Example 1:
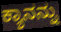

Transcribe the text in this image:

ಕ್ಯಾನನ್ನು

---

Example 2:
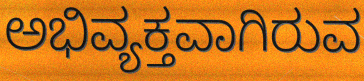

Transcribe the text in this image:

ಅಭಿವ್ಯಕ್ತವಾಗಿರುವ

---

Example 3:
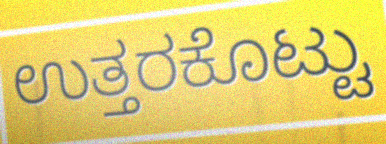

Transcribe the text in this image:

ಉತ್ತರಕೊಟ್ಟು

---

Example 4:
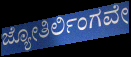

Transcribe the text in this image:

ಜ್ಯೋತಿರ್ಲಿಂಗವೇ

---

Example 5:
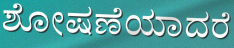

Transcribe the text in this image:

ಶೋಷಣೆಯಾದರೆ